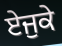
ਏਜੁਕੇ